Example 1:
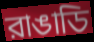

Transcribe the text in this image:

রাঙাডি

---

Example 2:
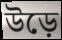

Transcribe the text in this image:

উড়ে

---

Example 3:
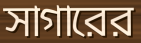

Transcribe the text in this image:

সাগারের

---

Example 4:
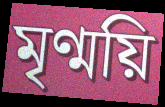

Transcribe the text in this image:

মৃণ্ময়ি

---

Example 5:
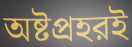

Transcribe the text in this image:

অষ্টপ্রহরই